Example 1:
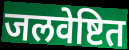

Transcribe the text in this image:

जलवेष्टित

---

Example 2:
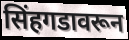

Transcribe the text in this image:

सिंहगडावरून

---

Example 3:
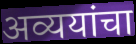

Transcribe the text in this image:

अव्ययांचा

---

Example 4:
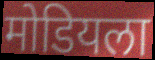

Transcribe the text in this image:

मोडियला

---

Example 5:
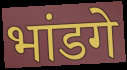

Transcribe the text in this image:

भांडगे